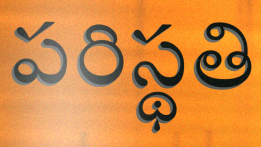
పరిస్థతి